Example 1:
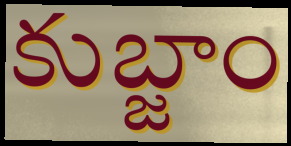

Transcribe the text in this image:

కుబ్జాం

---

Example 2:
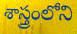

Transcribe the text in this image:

శాస్త్రంలోని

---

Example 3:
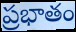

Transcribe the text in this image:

ప్రభాతం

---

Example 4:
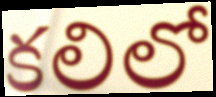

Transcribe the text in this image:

కలిలో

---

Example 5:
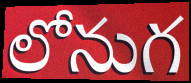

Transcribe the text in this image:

లోనుగ